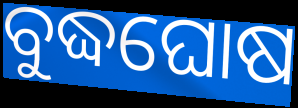
ବୁଦ୍ଧଘୋଷ